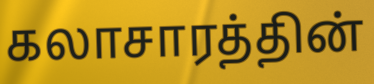
கலாசாரத்தின்